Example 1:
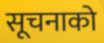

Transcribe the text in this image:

सूचनाको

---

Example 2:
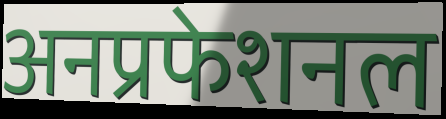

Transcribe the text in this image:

अनप्रफेशनल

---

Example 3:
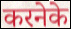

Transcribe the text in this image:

करनेके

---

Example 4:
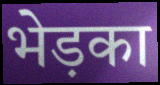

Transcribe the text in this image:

भेड़का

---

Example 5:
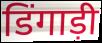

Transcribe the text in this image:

डिंगाड़ी